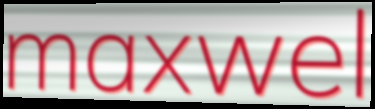
maxwel